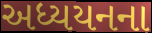
અધ્યયનના